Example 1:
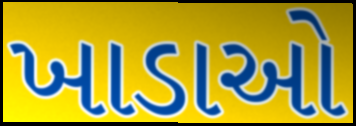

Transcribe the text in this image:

ખાડાઓ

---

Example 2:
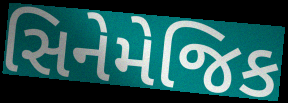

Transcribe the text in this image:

સિનેમેજિક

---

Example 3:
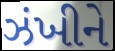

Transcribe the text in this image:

ઝંખીને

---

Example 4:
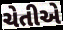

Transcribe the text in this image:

ચેતીએ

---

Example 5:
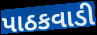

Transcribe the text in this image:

પાઠકવાડી